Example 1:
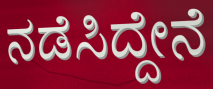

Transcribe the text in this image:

ನಡೆಸಿದ್ದೇನೆ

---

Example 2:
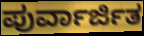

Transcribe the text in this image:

ಪುರ್ವಾರ್ಜಿತ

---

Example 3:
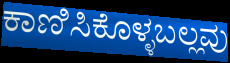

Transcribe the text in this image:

ಕಾಣಿಸಿಕೊಳ್ಳಬಲ್ಲವು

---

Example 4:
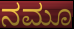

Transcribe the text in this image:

ನಮೂ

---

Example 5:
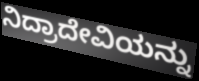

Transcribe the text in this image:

ನಿದ್ರಾದೇವಿಯನ್ನು